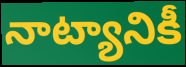
నాట్యానికీ